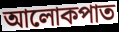
আলোকপাত